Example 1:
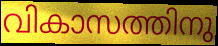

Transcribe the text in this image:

വികാസത്തിനു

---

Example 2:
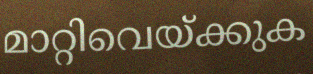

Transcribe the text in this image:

മാറ്റിവെയ്ക്കുക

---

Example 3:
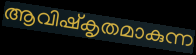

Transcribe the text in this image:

ആവിഷ്കൃതമാകുന്ന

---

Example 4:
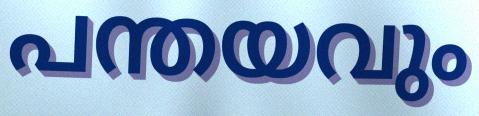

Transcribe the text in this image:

പന്തയവും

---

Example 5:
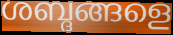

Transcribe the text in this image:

ശബ്ദങ്ങളെ